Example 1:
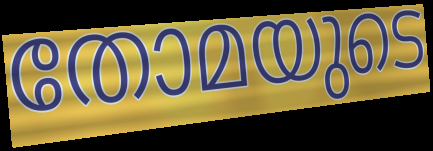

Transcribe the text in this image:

തോമയുടെ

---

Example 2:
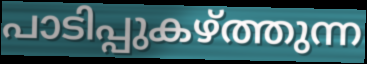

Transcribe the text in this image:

പാടിപ്പുകഴ്ത്തുന്ന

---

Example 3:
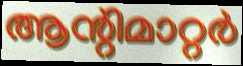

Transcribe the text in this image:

ആന്റിമാറ്റർ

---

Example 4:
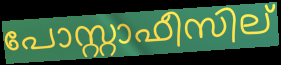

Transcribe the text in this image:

പോസ്റ്റാഫീസില്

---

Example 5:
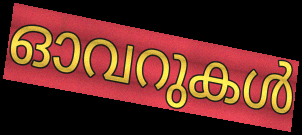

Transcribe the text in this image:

ഓവറുകൾ